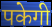
पकेगी